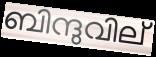
ബിന്ദുവില്